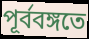
পূর্ববঙ্গতে